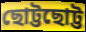
ছোট্টছোট্ট